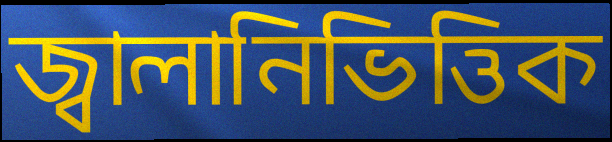
জ্বালানিভিত্তিক